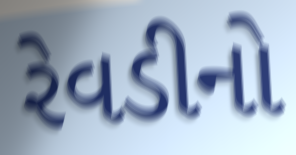
રેવડીનો